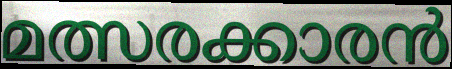
മത്സരക്കാരൻ